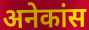
अनेकांस